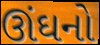
ઊંઘનો